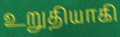
உறுதியாகி